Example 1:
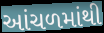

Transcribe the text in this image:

આંચળમાંથી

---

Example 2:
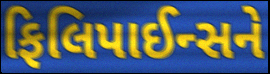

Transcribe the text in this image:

ફિલિપાઈન્સને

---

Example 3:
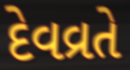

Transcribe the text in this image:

દેવવ્રતે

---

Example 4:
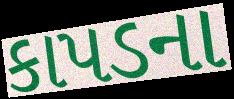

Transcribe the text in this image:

કાપડના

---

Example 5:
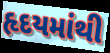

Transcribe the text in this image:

હૃદયમાંથી